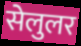
सेलुलर